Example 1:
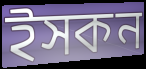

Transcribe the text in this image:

ইসকন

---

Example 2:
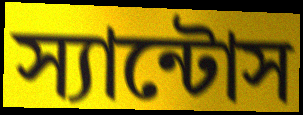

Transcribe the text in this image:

স্যান্টোস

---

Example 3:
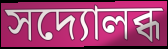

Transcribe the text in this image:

সদ্যোলব্ধ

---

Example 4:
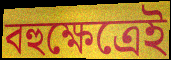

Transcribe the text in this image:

বহুক্ষেত্রেই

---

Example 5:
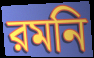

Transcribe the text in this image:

রমনি